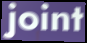
joint